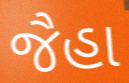
જૈહા